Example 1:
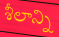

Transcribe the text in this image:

శీలాన్ని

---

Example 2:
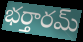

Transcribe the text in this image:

భర్తారమ్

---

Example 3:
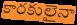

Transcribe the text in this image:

కారకులైనా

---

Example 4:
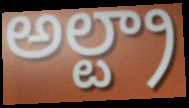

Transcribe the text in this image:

అల్ట్రా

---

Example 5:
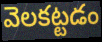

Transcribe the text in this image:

వెలకట్టడం